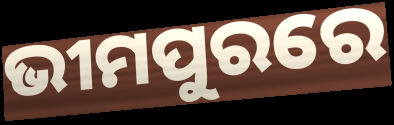
ଭୀମପୁରରେ